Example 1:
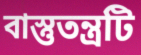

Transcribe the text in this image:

বাস্তুতন্ত্রটি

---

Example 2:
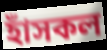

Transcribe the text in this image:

হাঁসকল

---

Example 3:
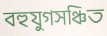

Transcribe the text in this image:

বহুযুগসঞ্চিত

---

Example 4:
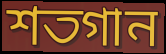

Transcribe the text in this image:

শতগান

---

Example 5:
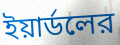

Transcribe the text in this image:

ইয়ার্ডলের